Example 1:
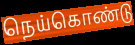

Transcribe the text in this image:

நெய்கொண்டு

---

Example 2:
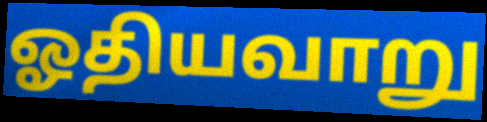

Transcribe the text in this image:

ஓதியவாறு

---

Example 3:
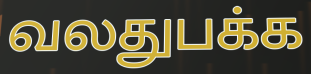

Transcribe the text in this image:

வலதுபக்க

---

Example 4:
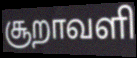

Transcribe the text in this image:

சூறாவளி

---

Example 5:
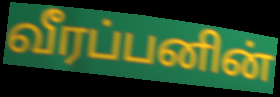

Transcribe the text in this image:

வீரப்பனின்